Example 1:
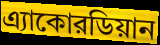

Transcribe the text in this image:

এ্যাকোরডিয়ান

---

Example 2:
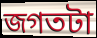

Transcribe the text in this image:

জগতটা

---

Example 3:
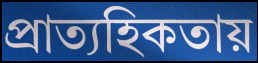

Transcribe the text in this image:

প্রাত্যহিকতায়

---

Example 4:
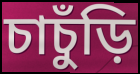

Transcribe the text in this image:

চাচুঁড়ি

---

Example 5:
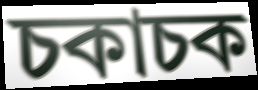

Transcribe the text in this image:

চকাচক